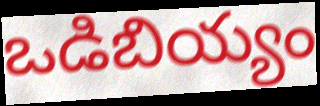
ఒడిబియ్యం